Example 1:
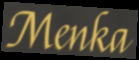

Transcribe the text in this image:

Menka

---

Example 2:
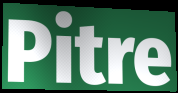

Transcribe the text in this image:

Pitre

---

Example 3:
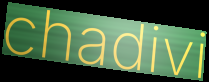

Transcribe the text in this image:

chadivi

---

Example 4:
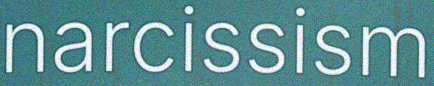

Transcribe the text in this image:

narcissism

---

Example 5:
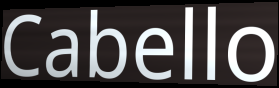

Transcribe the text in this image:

Cabello